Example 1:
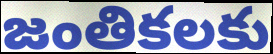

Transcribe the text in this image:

జంతికలకు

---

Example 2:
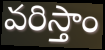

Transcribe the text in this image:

వరిస్తాం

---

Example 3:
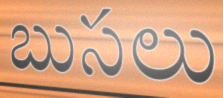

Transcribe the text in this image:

బుసలు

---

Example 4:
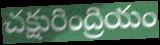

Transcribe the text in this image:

చక్షురింద్రియం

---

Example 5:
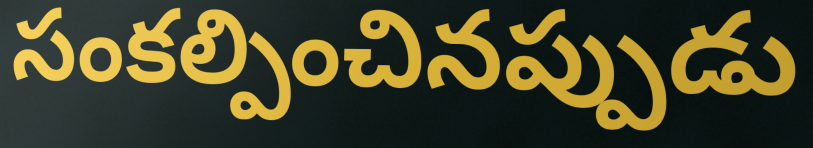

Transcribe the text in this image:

సంకల్పించినప్పుడు